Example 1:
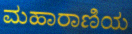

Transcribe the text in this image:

ಮಹಾರಾಣಿಯ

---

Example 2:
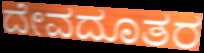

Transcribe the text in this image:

ದೇವದೂತರ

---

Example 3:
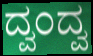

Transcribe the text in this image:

ದ್ವಂದ್ವ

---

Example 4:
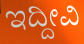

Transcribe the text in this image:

ಇದ್ದೀವಿ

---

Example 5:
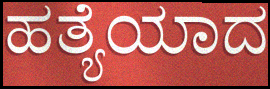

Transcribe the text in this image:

ಹತ್ಯೆಯಾದ